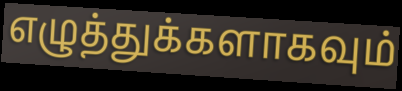
எழுத்துக்களாகவும்